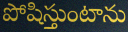
పోషిస్తుంటాను